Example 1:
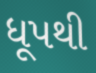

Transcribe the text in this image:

ધૂપથી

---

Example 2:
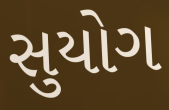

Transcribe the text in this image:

સુયોગ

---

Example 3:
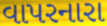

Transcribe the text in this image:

વાપરનારા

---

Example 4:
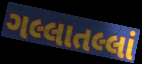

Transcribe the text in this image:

ગલ્લાતલ્લાં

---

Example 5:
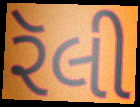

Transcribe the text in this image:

રૅલી